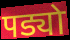
पड्यो